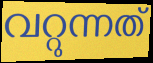
വറ്റുന്നത്